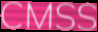
CMSS